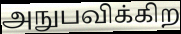
அநுபவிக்கிற